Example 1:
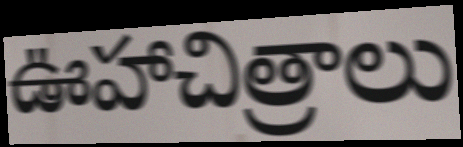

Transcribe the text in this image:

ఊహాచిత్రాలు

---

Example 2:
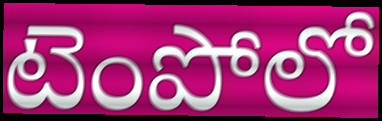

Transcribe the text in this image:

టెంపోలో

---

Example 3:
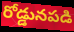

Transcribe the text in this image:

రోడ్డునపడి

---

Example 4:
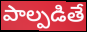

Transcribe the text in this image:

పాల్పడితే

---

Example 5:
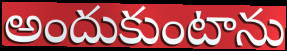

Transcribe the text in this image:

అందుకుంటాను